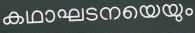
കഥാഘടനയെയും